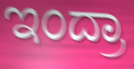
ಇಂದ್ರಾ